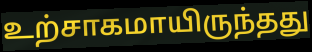
உற்சாகமாயிருந்தது